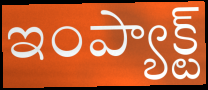
ఇంప్యాక్ట్